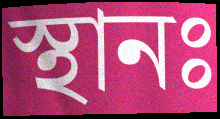
স্থানঃ